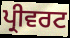
ਪ੍ਰੀਵਰਟ